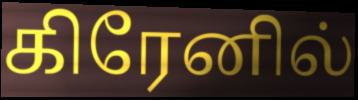
கிரேனில்